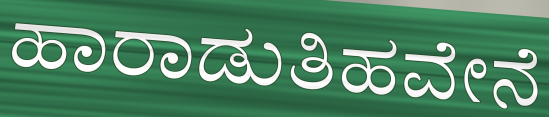
ಹಾರಾಡುತಿಹವೇನೆ